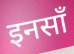
इनसाँ